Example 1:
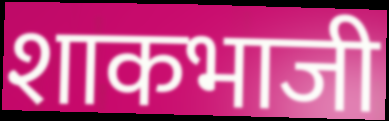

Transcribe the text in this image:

शाकभाजी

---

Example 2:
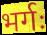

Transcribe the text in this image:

भर्गः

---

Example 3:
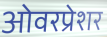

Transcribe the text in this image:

ओवरप्रेशर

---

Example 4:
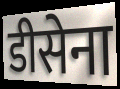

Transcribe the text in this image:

डीसेना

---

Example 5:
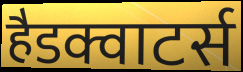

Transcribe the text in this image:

हैडक्वाटर्स